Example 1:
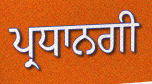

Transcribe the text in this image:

ਪ੍ਰਧਾਨਗੀ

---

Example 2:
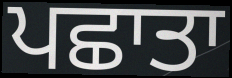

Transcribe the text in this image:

ਪਛਾਤਾ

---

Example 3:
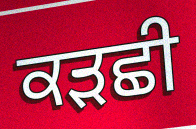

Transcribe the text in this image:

ਕੜਛੀ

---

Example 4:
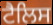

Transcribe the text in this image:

ਟੈਲਿਸ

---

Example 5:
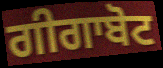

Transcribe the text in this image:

ਗੀਗਾਬੋਟ